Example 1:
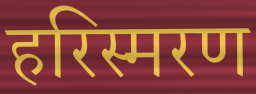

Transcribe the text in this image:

हरिस्मरण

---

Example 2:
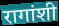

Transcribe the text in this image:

रागांशी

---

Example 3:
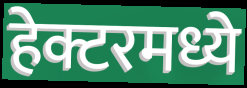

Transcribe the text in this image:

हेक्टरमध्ये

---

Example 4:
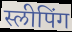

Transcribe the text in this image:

स्लीपिंग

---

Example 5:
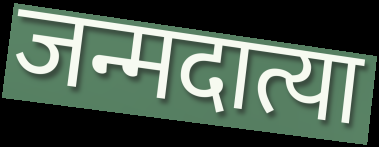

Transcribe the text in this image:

जन्मदात्या